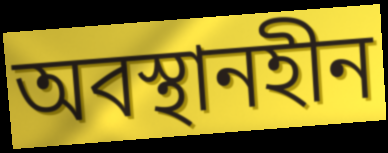
অবস্থানহীন